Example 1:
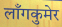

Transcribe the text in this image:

लाँगकुमेर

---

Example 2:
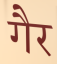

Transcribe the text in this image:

गैर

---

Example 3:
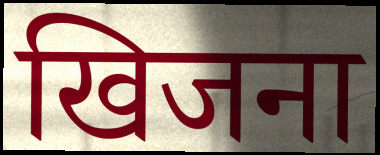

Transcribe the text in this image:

खिजना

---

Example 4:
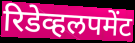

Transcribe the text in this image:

रिडेव्हलपमेंट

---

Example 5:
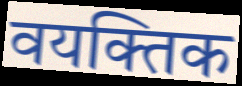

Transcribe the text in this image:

वयक्तिक